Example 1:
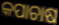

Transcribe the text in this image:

କପାଚାଷ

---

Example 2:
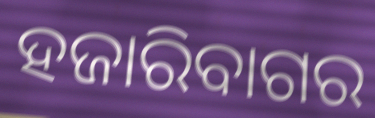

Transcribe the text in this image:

ହଜାରିବାଗର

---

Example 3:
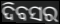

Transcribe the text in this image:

ଦିବସର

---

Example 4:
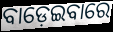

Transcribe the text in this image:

ବାଡ଼େଇବାରେ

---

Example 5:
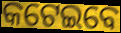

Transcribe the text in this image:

କଟେଇବେ